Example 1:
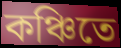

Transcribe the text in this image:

কঞ্চিতে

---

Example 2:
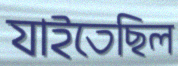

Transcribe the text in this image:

যাইতেছিল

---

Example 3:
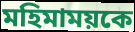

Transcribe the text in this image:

মহিমাময়কে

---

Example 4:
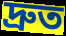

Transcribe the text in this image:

দ্রুত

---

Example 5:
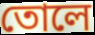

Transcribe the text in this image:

তোলে